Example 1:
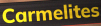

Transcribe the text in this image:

Carmelites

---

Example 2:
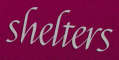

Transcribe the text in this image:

shelters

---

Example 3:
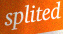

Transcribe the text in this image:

splited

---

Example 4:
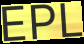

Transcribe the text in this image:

EPL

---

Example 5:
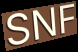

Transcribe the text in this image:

SNF